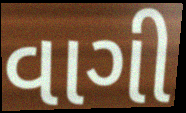
વાગી